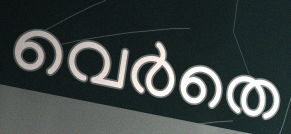
വെർതെ